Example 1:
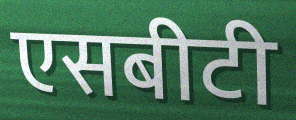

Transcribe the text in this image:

एसबीटी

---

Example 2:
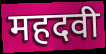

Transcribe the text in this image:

महदवी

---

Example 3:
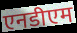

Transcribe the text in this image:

एनडीएम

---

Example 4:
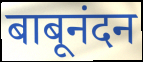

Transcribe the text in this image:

बाबूनंदन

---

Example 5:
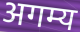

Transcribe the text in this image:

अगम्य